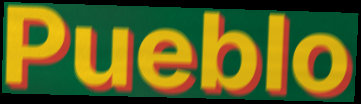
Pueblo